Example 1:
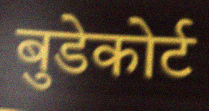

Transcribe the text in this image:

बुडेकोर्ट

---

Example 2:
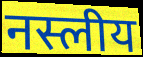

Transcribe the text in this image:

नस्लीय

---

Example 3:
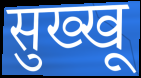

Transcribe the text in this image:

सुख्खू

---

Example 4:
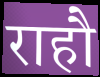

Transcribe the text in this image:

राहौ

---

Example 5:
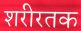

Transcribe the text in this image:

शरीरतक